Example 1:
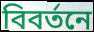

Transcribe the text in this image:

বিবর্তনে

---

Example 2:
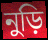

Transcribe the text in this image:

নুড়ি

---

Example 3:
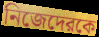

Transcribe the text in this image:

নিজেদেরকে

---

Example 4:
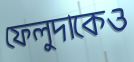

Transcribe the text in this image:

ফেলুদাকেও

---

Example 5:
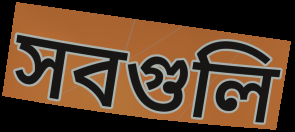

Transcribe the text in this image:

সবগুলি